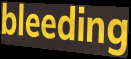
bleeding